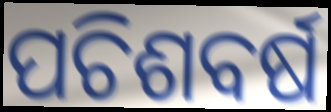
ପଚିଶବର୍ଷ